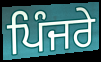
ਪਿੰਜਰੇ